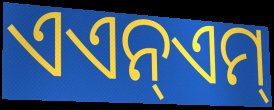
ଏଏନ୍ଏମ୍